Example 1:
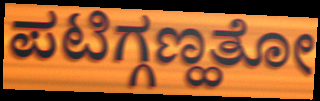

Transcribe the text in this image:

ಪಟಿಗ್ಗಣ್ಹತೋ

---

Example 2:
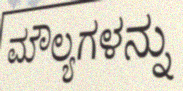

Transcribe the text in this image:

ಮೌಲ್ಯಗಳನ್ನು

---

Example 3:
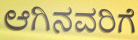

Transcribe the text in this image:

ಆಗಿನವರಿಗೆ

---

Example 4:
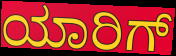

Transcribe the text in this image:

ಯಾರಿಗ್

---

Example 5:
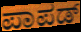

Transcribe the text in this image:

ಪಾಪಡ್